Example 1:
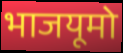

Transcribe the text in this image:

भाजयूमो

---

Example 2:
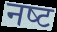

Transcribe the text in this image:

नष्‍ट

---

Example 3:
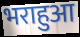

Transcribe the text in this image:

भराहुआ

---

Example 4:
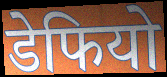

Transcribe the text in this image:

डेफियो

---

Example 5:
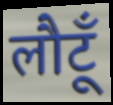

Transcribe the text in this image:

लौटूँ